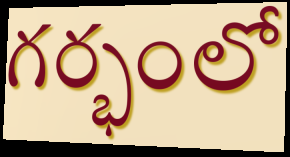
గర్భంలో